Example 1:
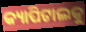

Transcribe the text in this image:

କ୍ୟାପିଟାଲକୁ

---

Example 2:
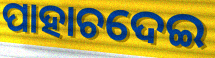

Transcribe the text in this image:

ପାହାଚଦେଇ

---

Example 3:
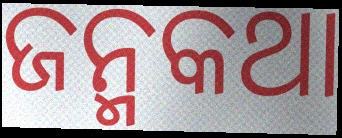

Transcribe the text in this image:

ଜନ୍ମକଥା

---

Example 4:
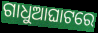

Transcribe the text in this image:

ଗାଧୁଆଘାଟରେ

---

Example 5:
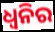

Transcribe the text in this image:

ଧ୍ୱନିର